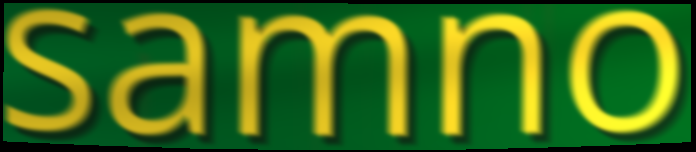
samno